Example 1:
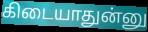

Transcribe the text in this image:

கிடையாதுன்னு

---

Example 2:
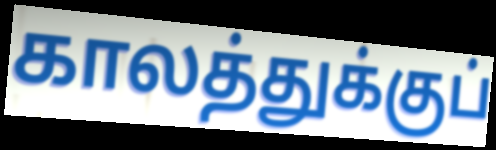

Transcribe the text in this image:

காலத்துக்குப்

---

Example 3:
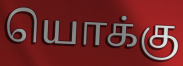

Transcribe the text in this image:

யொக்கு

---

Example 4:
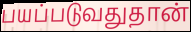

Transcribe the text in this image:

பயப்படுவதுதான்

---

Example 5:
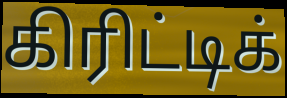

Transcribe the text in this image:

கிரிட்டிக்